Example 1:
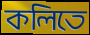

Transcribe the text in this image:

কলিতে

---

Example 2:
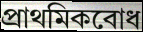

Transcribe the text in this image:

প্রাথমিকবোধ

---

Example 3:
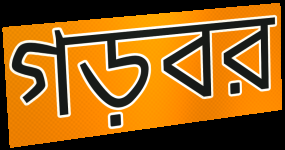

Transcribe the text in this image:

গড়বর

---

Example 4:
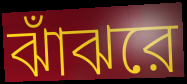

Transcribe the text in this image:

ঝাঁঝরে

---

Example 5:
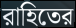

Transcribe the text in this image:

রাহিতের